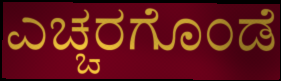
ಎಚ್ಚರಗೊಂಡೆ